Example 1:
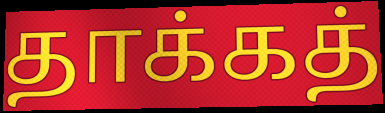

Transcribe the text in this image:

தாக்கத்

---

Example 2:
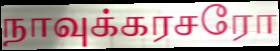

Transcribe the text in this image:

நாவுக்கரசரோ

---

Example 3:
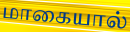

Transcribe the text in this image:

மாகையால்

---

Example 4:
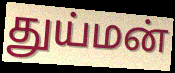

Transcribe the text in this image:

துய்மன்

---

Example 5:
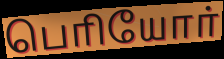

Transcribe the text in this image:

பெரியோர்